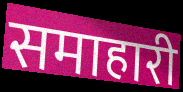
समाहारी